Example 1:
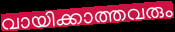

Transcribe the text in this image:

വായിക്കാത്തവരും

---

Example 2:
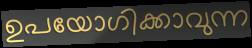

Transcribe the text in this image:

ഉപയോഗിക്കാവുന്ന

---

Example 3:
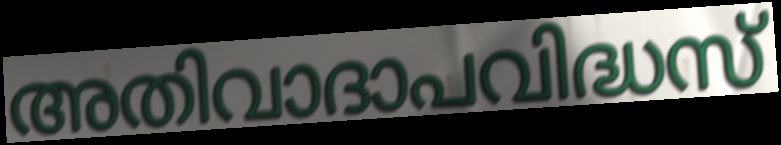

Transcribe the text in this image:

അതിവാദാപവിദ്ധസ്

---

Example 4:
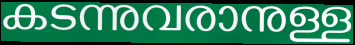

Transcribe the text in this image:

കടന്നുവരാനുള്ള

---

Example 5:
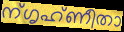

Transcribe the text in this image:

ന്ഗൃഹ്ണീതാ